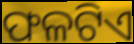
ଫଳଟିଏ